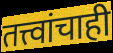
तत्त्वांचाही